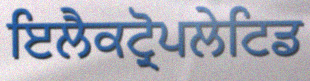
ਇਲੈਕਟ੍ਰੋਪਲੇਟਿਡ